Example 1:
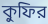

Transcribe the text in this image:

কুফির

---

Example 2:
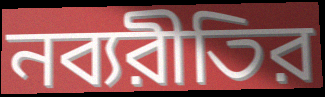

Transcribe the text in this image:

নব্যরীতির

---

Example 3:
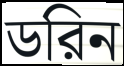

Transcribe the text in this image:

ডরিন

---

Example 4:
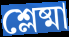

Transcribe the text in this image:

শ্লেষ্মা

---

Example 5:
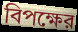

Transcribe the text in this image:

বিপক্ষের